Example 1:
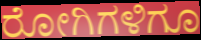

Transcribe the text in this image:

ರೋಗಿಗಳಿಗೂ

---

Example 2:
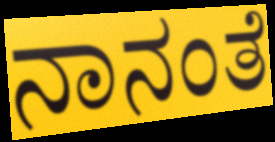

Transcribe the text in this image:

ನಾನಂತೆ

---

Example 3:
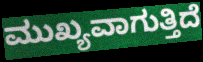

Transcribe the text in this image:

ಮುಖ್ಯವಾಗುತ್ತಿದೆ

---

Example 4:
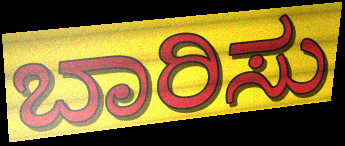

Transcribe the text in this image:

ಬಾರಿಸು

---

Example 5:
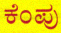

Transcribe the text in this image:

ಕೆಂಪು